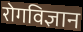
रोगविज्ञान